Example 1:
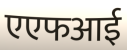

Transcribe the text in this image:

एएफआई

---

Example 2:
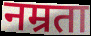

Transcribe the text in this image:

नम्रता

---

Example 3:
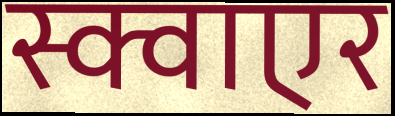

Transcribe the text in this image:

स्क्वाएर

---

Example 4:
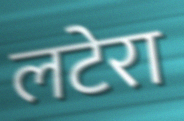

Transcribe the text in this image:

लटेरा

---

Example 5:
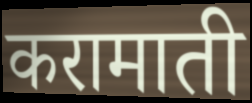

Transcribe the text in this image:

करामाती